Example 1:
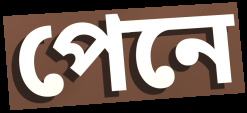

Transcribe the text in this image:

পেনে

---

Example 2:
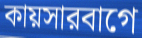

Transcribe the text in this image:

কায়সারবাগে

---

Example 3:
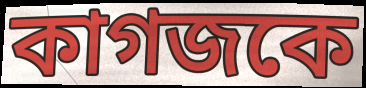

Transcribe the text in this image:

কাগজকে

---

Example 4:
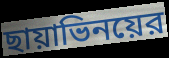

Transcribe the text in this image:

ছায়াভিনয়ের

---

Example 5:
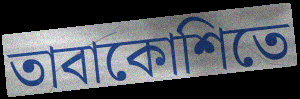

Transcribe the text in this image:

তাবাকোশিতে